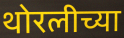
थोरलीच्या